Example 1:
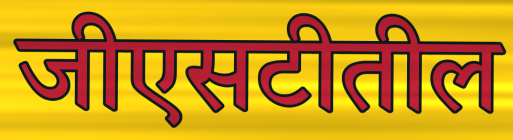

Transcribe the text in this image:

जीएसटीतील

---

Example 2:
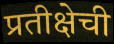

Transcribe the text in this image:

प्रतीक्षेची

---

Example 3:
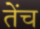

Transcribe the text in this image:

तेंच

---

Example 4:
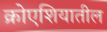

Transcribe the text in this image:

क्रोएशियातील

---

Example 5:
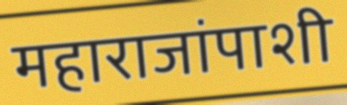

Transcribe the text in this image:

महाराजांपाशी